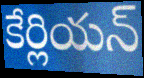
కేర్లియన్